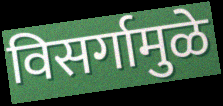
विसर्गामुळे